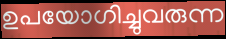
ഉപയോഗിച്ചുവരുന്ന